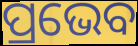
ପ୍ରଭେବ